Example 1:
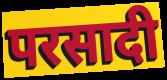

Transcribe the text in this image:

परसादी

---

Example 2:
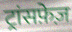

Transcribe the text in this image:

ट्रांसफ़ेज़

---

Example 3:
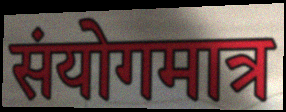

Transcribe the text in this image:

संयोगमात्र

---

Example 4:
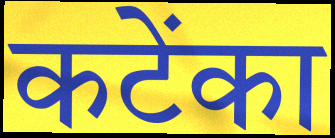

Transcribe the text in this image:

कटेंका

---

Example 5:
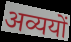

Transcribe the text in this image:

अव्ययों